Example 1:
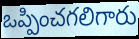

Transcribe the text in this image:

ఒప్పించగలిగారు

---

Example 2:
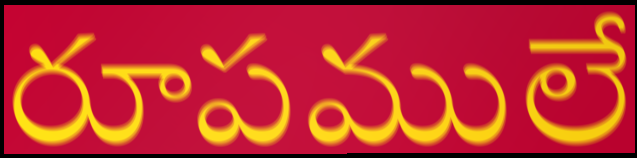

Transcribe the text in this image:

రూపములే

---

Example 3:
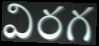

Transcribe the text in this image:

విరగ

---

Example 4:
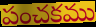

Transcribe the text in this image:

పంచకము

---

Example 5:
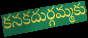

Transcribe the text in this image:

కనకదుర్గమ్మకు